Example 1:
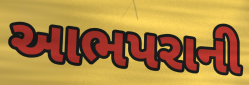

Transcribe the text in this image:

આભપરાની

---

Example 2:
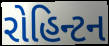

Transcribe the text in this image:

રોહિન્ટન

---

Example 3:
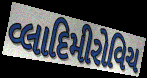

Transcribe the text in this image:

વ્લાદિમીરોવિચ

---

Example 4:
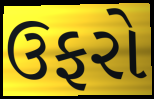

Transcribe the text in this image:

ઉફરો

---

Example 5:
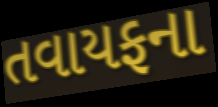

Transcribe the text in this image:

તવાયફના